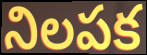
నిలపక